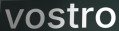
vostro